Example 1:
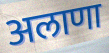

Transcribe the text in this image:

अलाणा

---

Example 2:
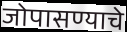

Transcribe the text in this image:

जोपासण्याचे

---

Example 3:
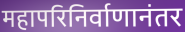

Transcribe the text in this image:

महापरिनिर्वाणानंतर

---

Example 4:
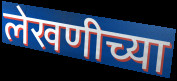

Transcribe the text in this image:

लेखणीच्या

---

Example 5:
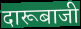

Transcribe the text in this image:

दारूबाजी